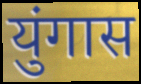
युंगास